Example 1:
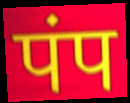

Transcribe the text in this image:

पंप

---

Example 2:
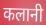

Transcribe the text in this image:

कलानी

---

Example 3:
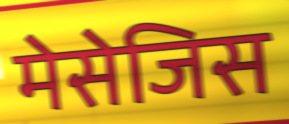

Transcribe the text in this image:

मेसेजिस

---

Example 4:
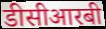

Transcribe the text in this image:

डीसीआरबी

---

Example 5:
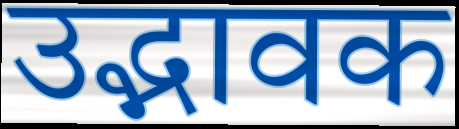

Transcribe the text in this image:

उद्भावक